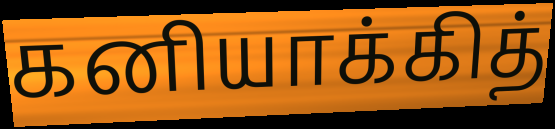
கனியாக்கித்